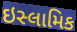
ઇસ્લામિક